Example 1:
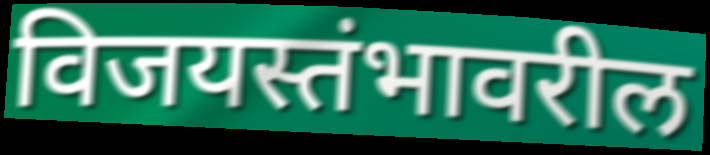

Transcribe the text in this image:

विजयस्तंभावरील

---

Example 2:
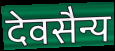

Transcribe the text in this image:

देवसैन्य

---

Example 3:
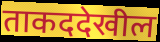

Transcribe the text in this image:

ताकददेखील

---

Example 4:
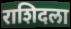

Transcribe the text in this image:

राशिदला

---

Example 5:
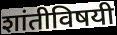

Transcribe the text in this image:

शांतीविषयी